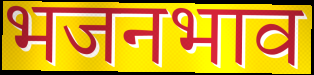
भजनभाव